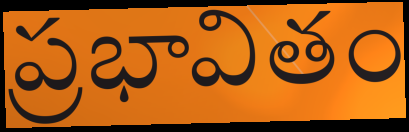
ప్రభావితం